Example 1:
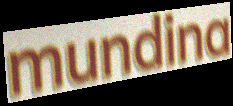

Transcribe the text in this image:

mundina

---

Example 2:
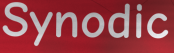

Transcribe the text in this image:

Synodic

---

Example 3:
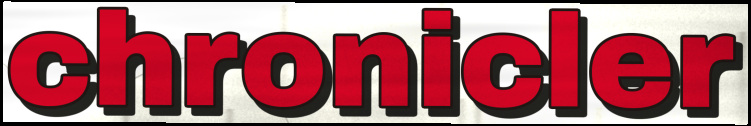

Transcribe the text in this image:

chronicler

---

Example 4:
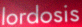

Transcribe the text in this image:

lordosis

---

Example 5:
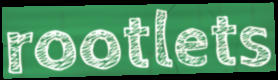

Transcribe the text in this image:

rootlets